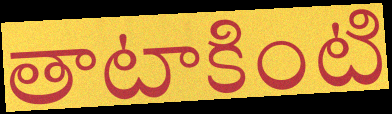
తాటాకింటి